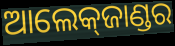
ଆଲେକ୍‌ଜାଣ୍ଡର